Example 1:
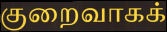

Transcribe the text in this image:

குறைவாகக்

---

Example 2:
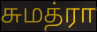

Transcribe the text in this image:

சுமத்ரா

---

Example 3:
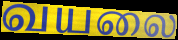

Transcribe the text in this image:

வயலை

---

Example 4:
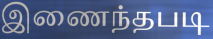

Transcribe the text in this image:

இணைந்தபடி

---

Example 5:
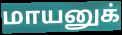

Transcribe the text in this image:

மாயனுக்